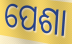
ପେଶା